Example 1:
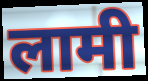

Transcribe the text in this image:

लामी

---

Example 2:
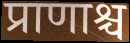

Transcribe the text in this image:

प्राणाश्च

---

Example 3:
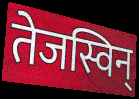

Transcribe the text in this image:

तेजस्विन्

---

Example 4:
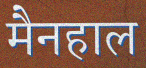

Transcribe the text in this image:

मैनहाल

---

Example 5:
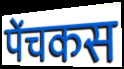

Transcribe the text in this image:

पेंचकस